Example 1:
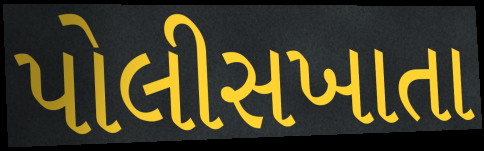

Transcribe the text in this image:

પોલીસખાતા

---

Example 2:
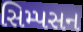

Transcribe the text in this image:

સિમ્પસન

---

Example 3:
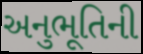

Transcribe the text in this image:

અનુભૂતિની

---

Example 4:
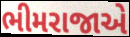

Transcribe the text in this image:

ભીમરાજાએ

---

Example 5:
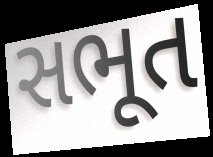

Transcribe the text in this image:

સભૂત